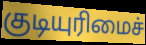
குடியுரிமைச்